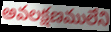
అవలక్షణములేని